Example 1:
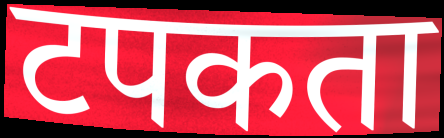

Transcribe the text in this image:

टपकता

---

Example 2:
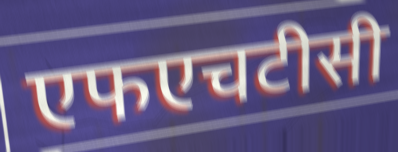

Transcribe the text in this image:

एफएचटीसी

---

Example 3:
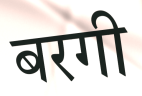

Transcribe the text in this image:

बरगी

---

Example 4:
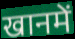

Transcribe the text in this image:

खानमें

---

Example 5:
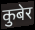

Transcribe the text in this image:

कुबेर